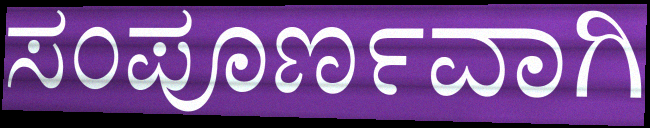
ಸಂಪೂರ್ಣವಾಗಿ